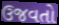
ઉજવતો